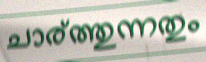
ചാര്ത്തുന്നതും